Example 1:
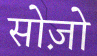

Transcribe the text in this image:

सोज़ो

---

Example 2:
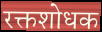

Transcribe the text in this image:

रक्तशोधक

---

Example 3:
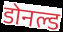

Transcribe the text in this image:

डोनल्‍ड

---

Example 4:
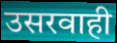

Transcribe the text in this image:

उसरवाही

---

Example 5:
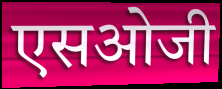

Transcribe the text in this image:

एसओजी